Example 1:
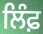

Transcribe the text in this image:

ਲਿੰਫ਼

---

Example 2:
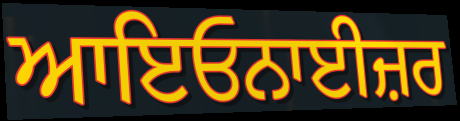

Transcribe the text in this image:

ਆਇਓਨਾਈਜ਼ਰ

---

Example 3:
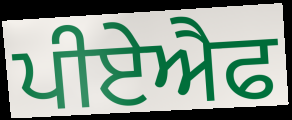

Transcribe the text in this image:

ਪੀਏਐਫ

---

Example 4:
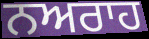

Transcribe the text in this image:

ਨਅਰਾਹ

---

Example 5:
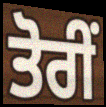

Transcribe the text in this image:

ਤੋਰੀਂ